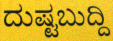
ದುಷ್ಟಬುದ್ದಿ